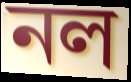
নল